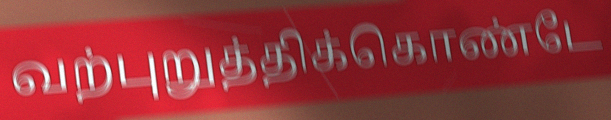
வற்புறுத்திக்கொண்டே